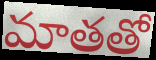
మాతతో